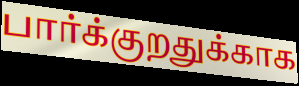
பார்க்குறதுக்காக